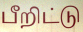
பீறிட்டு